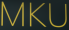
MKU